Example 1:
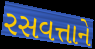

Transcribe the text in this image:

રસવત્તાને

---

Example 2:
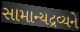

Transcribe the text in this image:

સામાન્યદ્રવ્યને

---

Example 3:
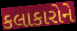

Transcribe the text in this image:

કલાકારોને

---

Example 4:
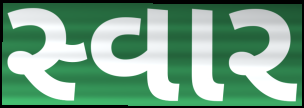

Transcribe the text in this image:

સ્વાર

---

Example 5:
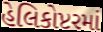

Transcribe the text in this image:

હેલિકોપ્ટરમાં